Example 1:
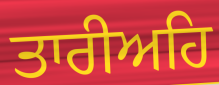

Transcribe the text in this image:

ਤਾਰੀਅਹਿ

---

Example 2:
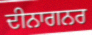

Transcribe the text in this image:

ਦੀਨਾਗਨਰ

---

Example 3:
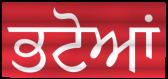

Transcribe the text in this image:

ਭਟੋਆਂ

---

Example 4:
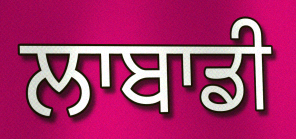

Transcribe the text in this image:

ਲਾਬਾਡੀ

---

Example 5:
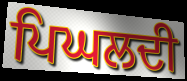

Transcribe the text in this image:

ਪਿਘਲਦੀ